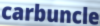
carbuncle